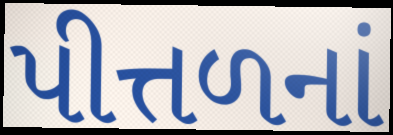
પીત્તળનાં